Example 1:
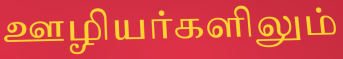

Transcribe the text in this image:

ஊழியர்களிலும்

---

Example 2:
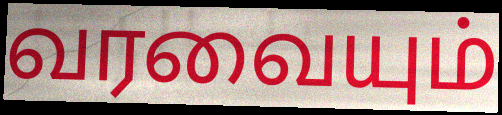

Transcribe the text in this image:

வரவையும்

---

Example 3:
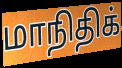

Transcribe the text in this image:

மாநிதிக்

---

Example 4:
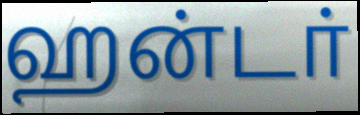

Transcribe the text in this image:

ஹன்டர்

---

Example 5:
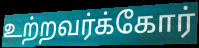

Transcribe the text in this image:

உற்றவர்க்கோர்